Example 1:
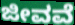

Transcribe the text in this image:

ಜೀವವೆ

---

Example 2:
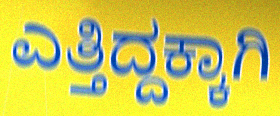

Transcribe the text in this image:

ಎತ್ತಿದ್ದಕ್ಕಾಗಿ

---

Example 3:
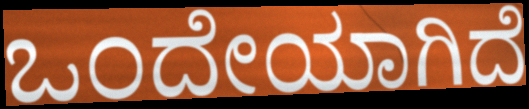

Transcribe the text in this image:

ಒಂದೇಯಾಗಿದೆ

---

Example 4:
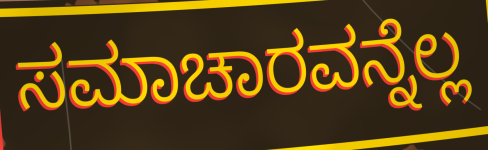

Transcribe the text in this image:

ಸಮಾಚಾರವನ್ನೆಲ್ಲ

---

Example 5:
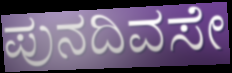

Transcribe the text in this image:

ಪುನದಿವಸೇ